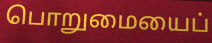
பொறுமையைப்